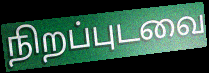
நிறப்புடவை